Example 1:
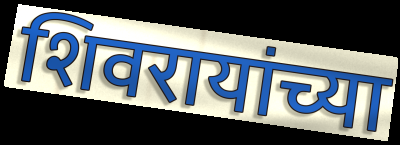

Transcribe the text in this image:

शिवरायांच्या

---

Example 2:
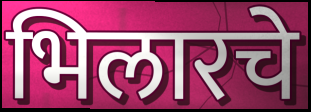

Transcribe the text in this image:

भिलारचे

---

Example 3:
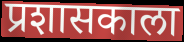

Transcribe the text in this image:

प्रशासकाला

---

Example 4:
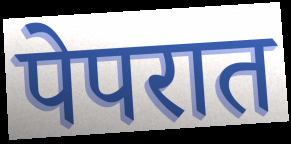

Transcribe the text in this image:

पेपरात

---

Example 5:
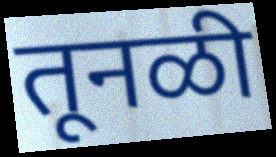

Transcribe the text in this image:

तूनळी